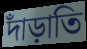
দাঁড়াতি